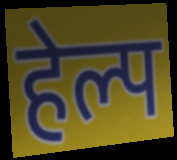
हेल्प